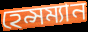
হেন্সম্যান